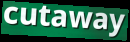
cutaway